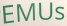
EMUs